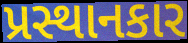
પ્રસ્થાનકાર